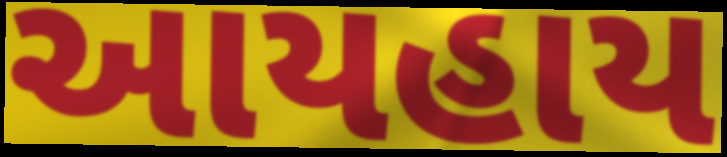
આયહાય